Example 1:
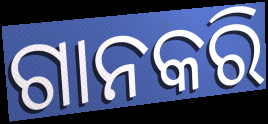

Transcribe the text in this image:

ଗାନକରି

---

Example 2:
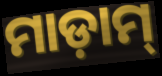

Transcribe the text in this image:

ମାଡ଼ାମ୍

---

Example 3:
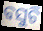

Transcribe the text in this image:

ବସୁଚି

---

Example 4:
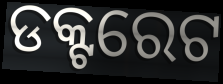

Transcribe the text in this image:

ଡକ୍ଟରେଟ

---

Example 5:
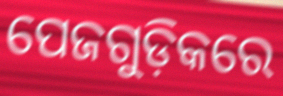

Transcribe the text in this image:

ପେଜଗୁଡ଼ିକରେ